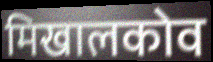
मिखालकोव